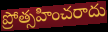
ప్రోత్సహించరాదు